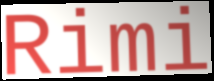
Rimi